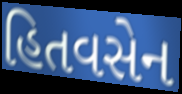
હિતવસેન